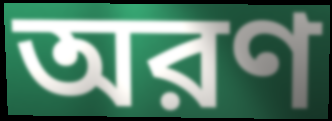
অরণ